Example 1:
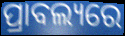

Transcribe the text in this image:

ପ୍ରାବଲ୍ୟରେ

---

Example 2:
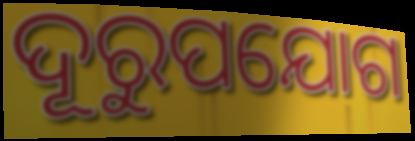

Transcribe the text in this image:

ଦୂରୁପଯୋଗ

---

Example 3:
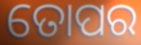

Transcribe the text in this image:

ତୋପର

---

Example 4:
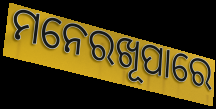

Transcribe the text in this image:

ମନେରଖୂପାରେ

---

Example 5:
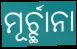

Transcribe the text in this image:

ମୂର୍ଚ୍ଛାନା